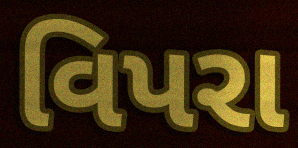
વિપરા